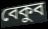
বেকুব